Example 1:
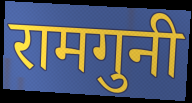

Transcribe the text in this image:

रामगुनी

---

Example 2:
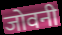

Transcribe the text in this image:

जोवनी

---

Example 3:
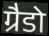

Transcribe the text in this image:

ग्रैडो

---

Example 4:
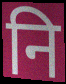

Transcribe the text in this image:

नि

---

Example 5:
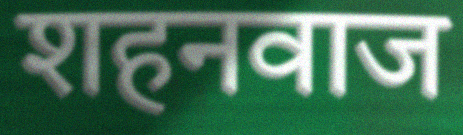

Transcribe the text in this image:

शहनवाज